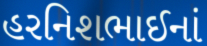
હરનિશભાઈનાં